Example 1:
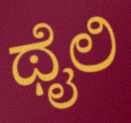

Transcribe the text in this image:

ಥೈಲಿ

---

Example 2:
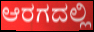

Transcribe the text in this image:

ಆರಗದಲ್ಲಿ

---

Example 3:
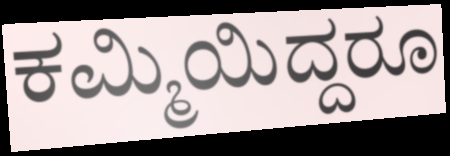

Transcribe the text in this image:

ಕಮ್ಮಿಯಿದ್ದರೂ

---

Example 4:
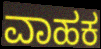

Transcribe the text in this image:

ವಾಹಕ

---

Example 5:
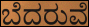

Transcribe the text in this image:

ಬೆದರುವೆ